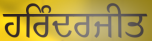
ਹਰਿੰਦਰਜੀਤ